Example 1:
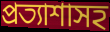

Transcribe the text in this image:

প্রত্যাশাসহ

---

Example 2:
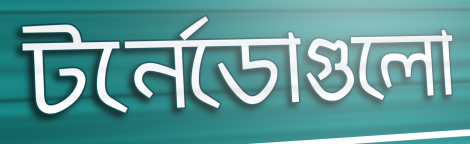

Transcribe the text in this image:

টর্নেডোগুলো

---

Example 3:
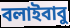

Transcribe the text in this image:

বলাইবাবু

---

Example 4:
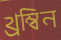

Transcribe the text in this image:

থ্রম্বিন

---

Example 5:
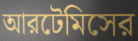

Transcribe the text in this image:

আরটেমিসের